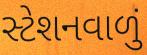
સ્ટેશનવાળું